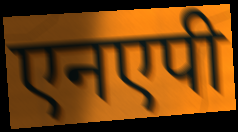
एनएपी